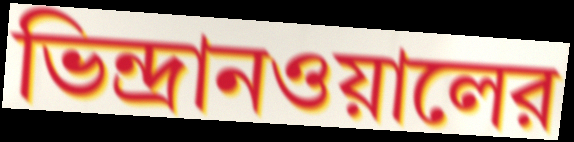
ভিন্দ্রানওয়ালের